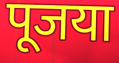
पूजया